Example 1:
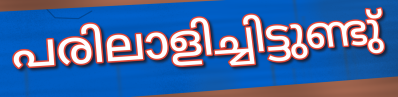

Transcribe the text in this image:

പരിലാളിച്ചിട്ടുണ്ടു്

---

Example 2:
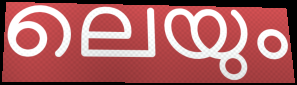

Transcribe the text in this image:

ലെയും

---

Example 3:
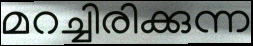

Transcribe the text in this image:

മറച്ചിരിക്കുന്ന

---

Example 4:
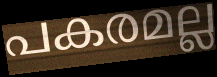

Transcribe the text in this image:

പകരമല്ല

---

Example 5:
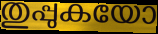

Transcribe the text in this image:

തുപ്പുകയോ